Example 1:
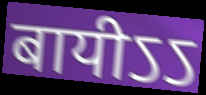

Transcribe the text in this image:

बायीऽऽ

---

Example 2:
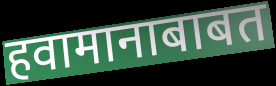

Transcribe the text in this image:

हवामानाबाबत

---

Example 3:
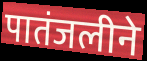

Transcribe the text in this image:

पातंजलीने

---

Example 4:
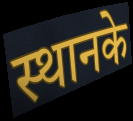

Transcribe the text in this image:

स्थानके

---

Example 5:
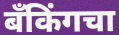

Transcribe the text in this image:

बँकिंगचा